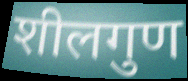
शीलगुण